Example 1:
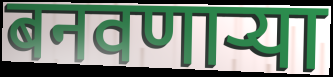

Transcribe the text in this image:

बनवणाऱ्या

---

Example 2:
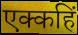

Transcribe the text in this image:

एक्कहिं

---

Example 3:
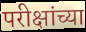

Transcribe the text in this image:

परीक्षांच्या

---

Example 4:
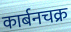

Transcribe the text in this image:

कार्बनचक्र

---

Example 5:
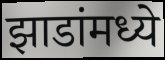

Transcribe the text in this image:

झाडांमध्ये